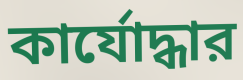
কার্যোদ্ধার